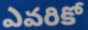
ఎవరికో